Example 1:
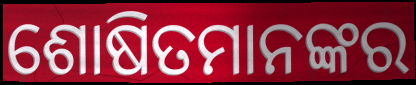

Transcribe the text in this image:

ଶୋଷିତମାନଙ୍କର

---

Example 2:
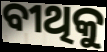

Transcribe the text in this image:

ବୀଥିକୁ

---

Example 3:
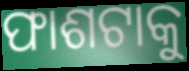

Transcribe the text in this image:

ଫାଶଟାକୁ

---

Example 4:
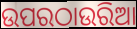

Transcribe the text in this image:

ଉପରଠାଉରିଆ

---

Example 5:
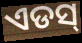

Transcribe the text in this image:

ଏଡସ୍